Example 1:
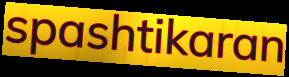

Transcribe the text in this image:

spashtikaran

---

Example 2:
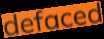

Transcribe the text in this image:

defaced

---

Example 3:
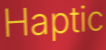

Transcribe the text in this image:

Haptic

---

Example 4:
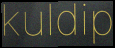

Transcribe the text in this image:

kuldip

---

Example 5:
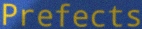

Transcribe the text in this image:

Prefects